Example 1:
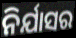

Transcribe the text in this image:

ନିର୍ଯାସର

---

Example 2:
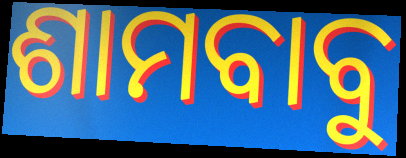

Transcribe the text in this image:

ଶାମବାବୁ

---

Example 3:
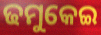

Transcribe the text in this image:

ଢମୁକେଇ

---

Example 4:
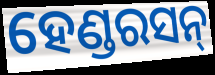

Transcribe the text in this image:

ହେଣ୍ଡରସନ୍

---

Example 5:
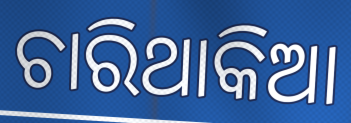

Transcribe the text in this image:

ଚାରିଥାକିଆ